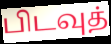
பிடவுத்